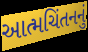
આત્મચિંતનનું